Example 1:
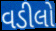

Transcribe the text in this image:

વડીલો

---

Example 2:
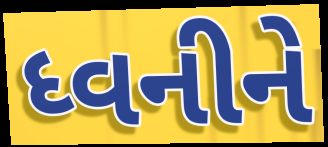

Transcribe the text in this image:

ધ્વનીને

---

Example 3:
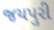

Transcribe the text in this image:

જયપુરી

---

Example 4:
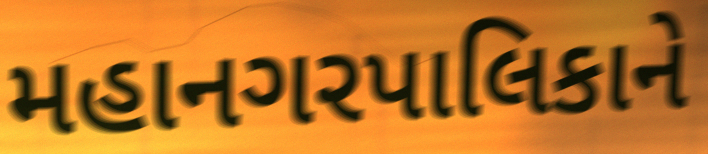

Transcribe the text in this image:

મહાનગરપાલિકાને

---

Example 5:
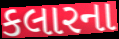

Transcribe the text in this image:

કલારના